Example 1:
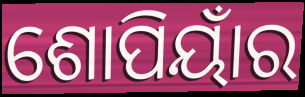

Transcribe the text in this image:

ଶୋପିୟାଁର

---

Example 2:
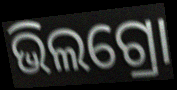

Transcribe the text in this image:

ଭିଲଗ୍ରୋ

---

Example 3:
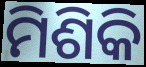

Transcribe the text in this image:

ମିଶିକି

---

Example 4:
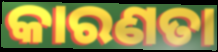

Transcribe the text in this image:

କାରଣତା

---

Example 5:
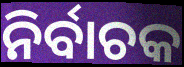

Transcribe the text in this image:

ନିର୍ବାଚକ